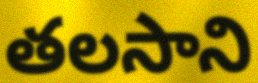
తలసాని